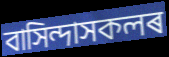
বাসিন্দাসকলৰ